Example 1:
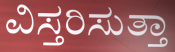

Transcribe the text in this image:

ವಿಸ್ತರಿಸುತ್ತಾ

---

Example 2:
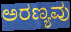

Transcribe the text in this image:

ಅರಣ್ಯವು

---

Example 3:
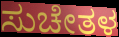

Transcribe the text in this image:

ಸುಚೇತಳ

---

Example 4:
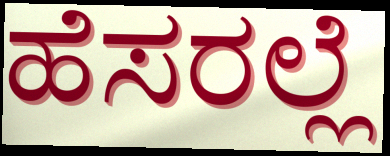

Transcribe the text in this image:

ಹೆಸರಲ್ಲೆ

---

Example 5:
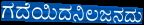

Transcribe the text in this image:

ಗದೆಯಿದನಿಲಜನದು